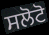
ਸਲੋਟੋ